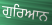
ਗੁਰਿਆਨ